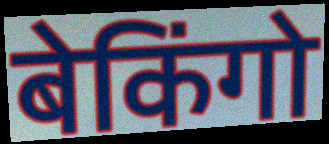
बेकिंगो